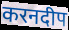
करनदीप